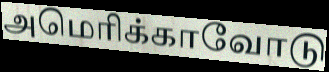
அமெரிக்காவோடு